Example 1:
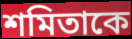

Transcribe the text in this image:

শমিতাকে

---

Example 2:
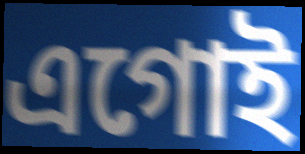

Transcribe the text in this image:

এগোই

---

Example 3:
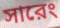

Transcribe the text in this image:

সারেং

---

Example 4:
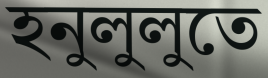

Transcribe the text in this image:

হনুলুলুতে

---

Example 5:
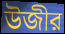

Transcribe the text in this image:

উজীর